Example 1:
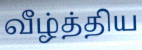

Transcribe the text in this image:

வீழ்த்திய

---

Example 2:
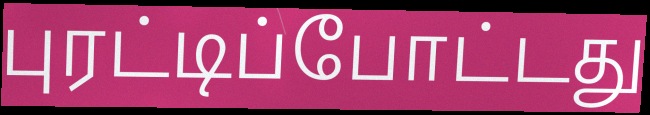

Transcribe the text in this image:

புரட்டிப்போட்டது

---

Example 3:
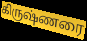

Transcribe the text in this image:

கிருஷ்ணரை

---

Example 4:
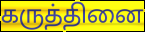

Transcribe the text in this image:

கருத்தினை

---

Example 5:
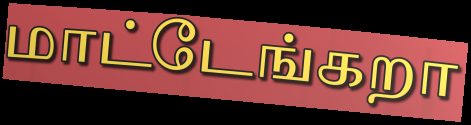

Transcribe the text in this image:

மாட்டேங்கறா